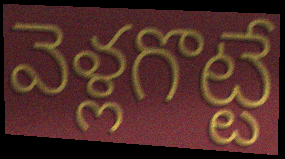
వెళ్లగొట్టే